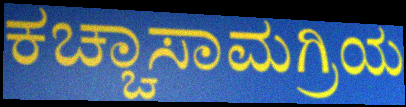
ಕಚ್ಚಾಸಾಮಗ್ರಿಯ